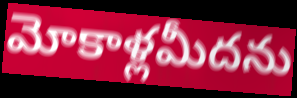
మోకాళ్లమీదను